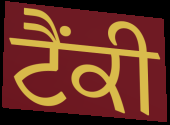
ਟੈਂਕੀ